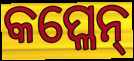
କପ୍ଳେନ୍